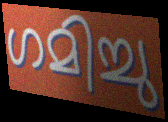
ഗമിച്ചു